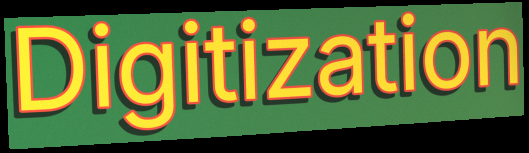
Digitization